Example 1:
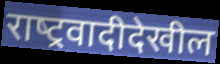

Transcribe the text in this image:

राष्ट्रवादीदेखील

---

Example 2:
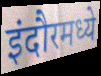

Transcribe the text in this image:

इंदौरमध्ये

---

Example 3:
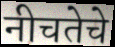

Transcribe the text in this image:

नीचतेचे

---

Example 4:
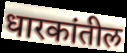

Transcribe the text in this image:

धारकांतील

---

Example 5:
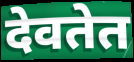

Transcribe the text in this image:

देवतेत